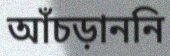
আঁচড়াননি